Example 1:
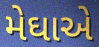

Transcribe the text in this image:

મેઘાએ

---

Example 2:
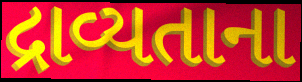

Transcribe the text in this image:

દ્રાવ્યતાના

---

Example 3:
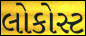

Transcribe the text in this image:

લોકોસ્ટ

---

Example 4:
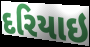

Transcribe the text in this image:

દરિયાઇ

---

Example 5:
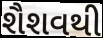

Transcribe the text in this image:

શૈશવથી